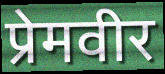
प्रेमवीर